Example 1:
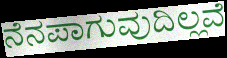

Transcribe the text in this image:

ನೆನಪಾಗುವುದಿಲ್ಲವೆ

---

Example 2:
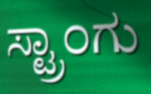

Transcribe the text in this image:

ಸ್ಟ್ರಾಂಗು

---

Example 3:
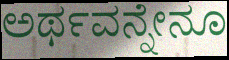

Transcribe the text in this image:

ಅರ್ಥವನ್ನೇನೂ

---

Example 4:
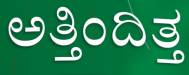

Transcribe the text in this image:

ಅತ್ತಿಂದಿತ್ತ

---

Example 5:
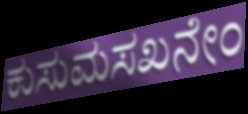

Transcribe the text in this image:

ಕುಸುಮಸಖನೇಂ